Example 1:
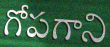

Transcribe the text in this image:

గోపగాని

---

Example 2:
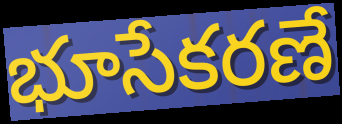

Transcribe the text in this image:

భూసేకరణే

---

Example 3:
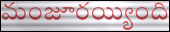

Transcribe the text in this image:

మంజూరయ్యింది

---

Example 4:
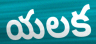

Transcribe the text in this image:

యలక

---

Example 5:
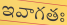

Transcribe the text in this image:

ఇవాగతః